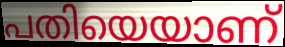
പതിയെയാണ്